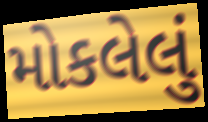
મોકલેલું